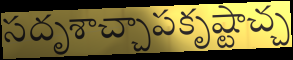
సదృశాచ్చాపకృష్టాచ్చ